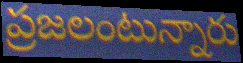
ప్రజలంటున్నారు